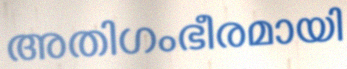
അതിഗംഭീരമായി